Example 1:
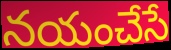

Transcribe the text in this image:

నయంచేసే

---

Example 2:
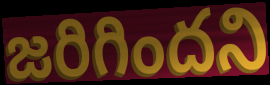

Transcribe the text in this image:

జరిగిందని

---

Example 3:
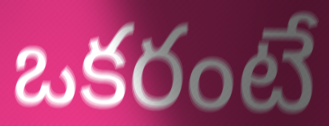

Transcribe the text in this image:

ఒకరంటే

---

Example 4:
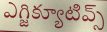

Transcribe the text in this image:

ఎగ్జిక్యూటివ్స్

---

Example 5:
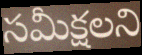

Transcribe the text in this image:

సమీక్షలని